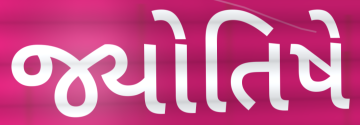
જ્યોતિષે